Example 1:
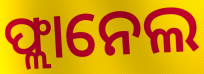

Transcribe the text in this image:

ଫ୍ଲାନେଲ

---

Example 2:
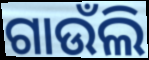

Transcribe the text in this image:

ଗାଉଁଲି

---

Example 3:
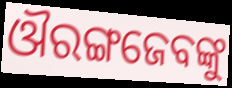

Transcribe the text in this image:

ଔରଙ୍ଗଜେବଙ୍କୁ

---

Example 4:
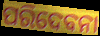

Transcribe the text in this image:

ପରିଦେବନା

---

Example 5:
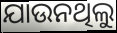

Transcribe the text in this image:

ଯାଉନଥିଲୁ